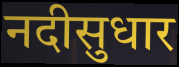
नदीसुधार